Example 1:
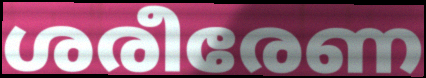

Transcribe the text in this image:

ശരീരേണ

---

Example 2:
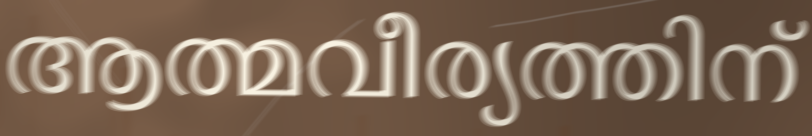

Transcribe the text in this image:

ആത്മവീര്യത്തിന്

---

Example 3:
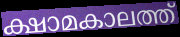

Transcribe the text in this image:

ക്ഷാമകാലത്ത്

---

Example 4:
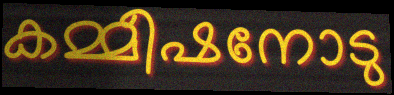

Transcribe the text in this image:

കമ്മീഷനോടു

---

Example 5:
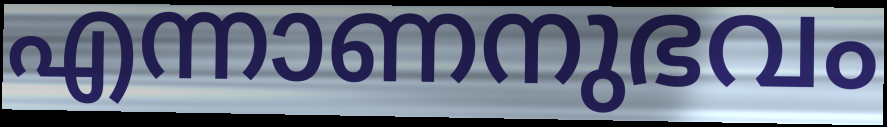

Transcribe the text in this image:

എന്നാണനുഭവം